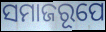
ସମାଜରୂପେ